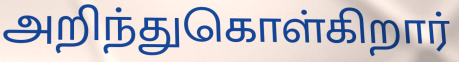
அறிந்துகொள்கிறார்